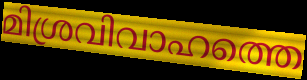
മിശ്രവിവാഹത്തെ